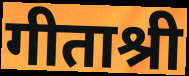
गीताश्री